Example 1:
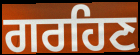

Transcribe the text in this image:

ਗਰਹਿਣ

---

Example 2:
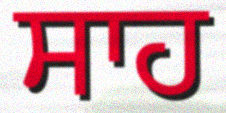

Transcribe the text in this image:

ਸਾਹ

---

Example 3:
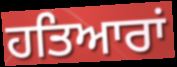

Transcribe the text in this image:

ਹਤਿਆਰਾਂ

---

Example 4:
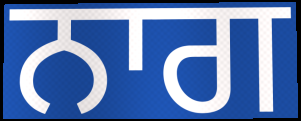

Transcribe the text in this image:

ਨਾਗ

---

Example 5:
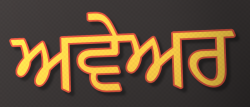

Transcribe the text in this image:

ਅਵੇਅਰ